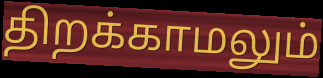
திறக்காமலும்